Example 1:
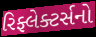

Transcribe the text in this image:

રિફ્લેક્ટર્સનો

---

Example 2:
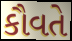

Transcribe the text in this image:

કૌવતે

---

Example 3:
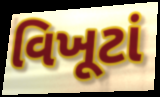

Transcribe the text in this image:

વિખૂટાં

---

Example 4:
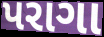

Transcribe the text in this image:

પરાગા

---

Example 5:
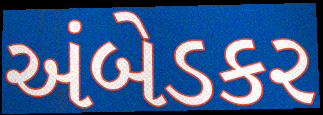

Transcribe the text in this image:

અંબેડકર